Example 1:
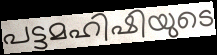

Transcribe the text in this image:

പട്ടമഹിഷിയുടെ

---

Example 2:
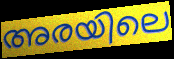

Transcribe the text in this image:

അരയിലെ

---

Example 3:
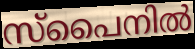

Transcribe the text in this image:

സ്പൈനിൽ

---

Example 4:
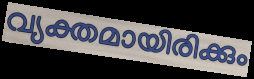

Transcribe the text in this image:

വ്യക്തമായിരിക്കും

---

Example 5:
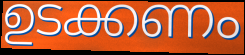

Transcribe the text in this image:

ഉടക്കണം